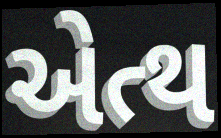
એત્થ